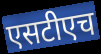
एसटीएच